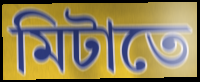
মিটাতে